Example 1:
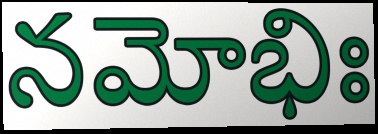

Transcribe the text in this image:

నమోభిః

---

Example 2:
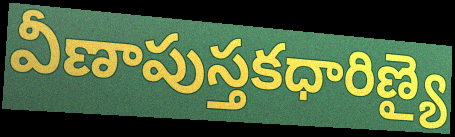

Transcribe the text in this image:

వీణాపుస్తకధారిణ్యై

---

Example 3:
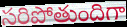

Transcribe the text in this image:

సరిపోతుందిగా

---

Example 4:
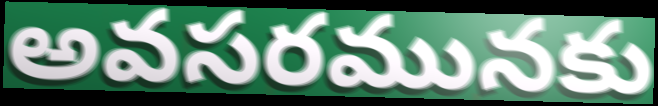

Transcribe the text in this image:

అవసరమునకు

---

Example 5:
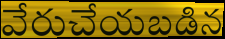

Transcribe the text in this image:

వేరుచేయబడిన